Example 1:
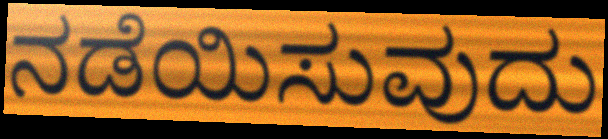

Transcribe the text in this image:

ನಡೆಯಿಸುವುದು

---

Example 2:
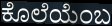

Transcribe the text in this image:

ಕೊಲೆಯೆಂಬ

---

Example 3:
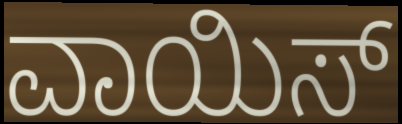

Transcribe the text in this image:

ವಾಯಿಸ್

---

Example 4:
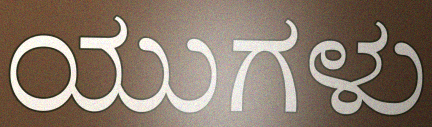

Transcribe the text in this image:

ಯುಗಳು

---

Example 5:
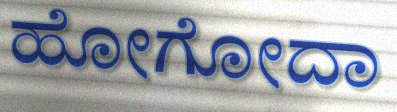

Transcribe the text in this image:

ಹೋಗೋದಾ